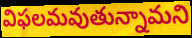
విఫలమవుతున్నామని